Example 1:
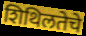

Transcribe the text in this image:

शिथिलतेचे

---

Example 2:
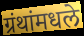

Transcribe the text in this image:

ग्रंथांमधले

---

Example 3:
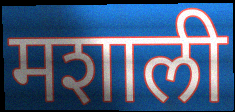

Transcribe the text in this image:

मशाली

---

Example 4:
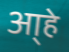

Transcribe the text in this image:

आ्हे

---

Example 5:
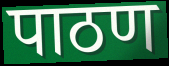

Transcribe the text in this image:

पाठण